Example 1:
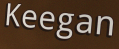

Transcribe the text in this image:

Keegan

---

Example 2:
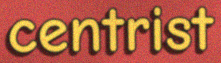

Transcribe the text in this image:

centrist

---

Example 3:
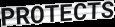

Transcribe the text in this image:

PROTECTS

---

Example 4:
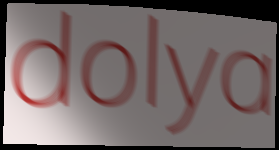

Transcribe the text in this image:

dolya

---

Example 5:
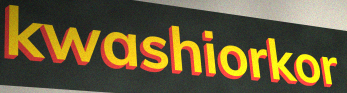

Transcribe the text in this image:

kwashiorkor